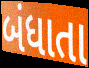
બંધાતા